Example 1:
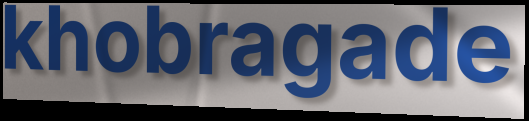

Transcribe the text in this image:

khobragade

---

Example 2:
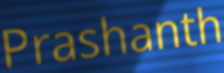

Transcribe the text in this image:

Prashanth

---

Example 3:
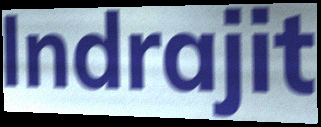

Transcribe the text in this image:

Indrajit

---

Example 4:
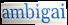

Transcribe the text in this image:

ambigai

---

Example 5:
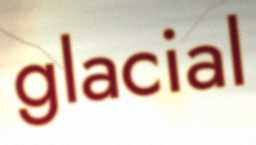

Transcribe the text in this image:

glacial